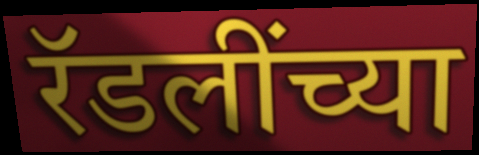
रॅडलींच्या